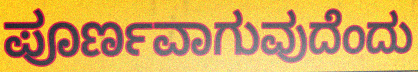
ಪೂರ್ಣವಾಗುವುದೆಂದು